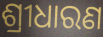
ଶ୍ରୀଧାରଣ